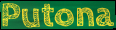
Putona